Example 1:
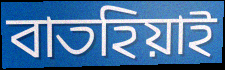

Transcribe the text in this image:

বাতহিয়াই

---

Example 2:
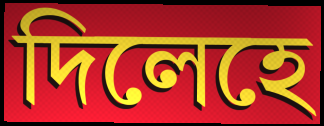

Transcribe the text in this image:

দিলেহে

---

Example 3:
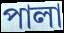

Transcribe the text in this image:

পালা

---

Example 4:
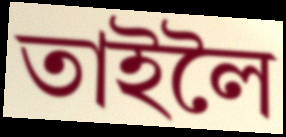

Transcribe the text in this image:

তাইলৈ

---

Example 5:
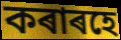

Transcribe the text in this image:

কৰাৰহে